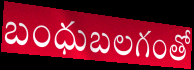
బంధుబలగంతో